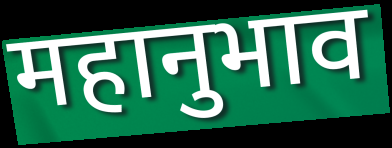
महानुभाव